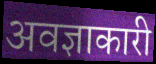
अवज्ञाकारी